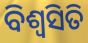
ବିଶ୍ଵସିତି